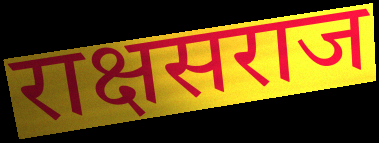
राक्षसराज